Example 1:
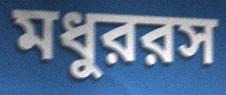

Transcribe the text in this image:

মধুররস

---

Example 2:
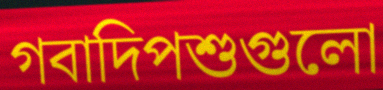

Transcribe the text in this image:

গবাদিপশুগুলো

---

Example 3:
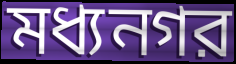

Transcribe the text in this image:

মধ্যনগর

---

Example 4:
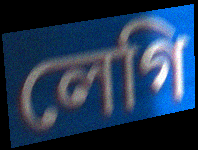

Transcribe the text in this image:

লেগি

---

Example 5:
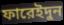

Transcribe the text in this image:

ফারেইদুন